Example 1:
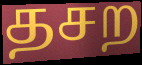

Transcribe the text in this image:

தசற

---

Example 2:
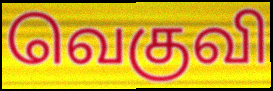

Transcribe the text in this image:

வெகுவி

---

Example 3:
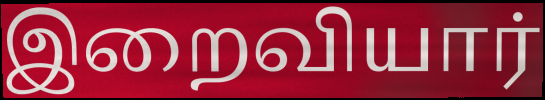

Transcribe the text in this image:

இறைவியார்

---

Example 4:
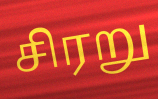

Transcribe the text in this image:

சிரறு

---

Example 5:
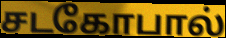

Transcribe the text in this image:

சடகோபால்